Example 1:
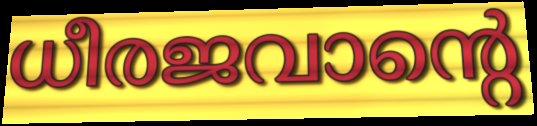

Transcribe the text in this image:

ധീരജവാന്റെ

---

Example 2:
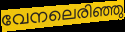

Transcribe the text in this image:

വേനലെരിഞ്ഞു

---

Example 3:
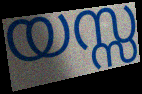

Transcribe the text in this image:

യസ്സ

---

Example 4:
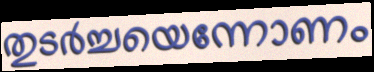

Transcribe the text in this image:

തുടർച്ചയെന്നോണം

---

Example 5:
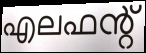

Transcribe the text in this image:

എലഫന്റ്